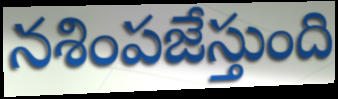
నశింపజేస్తుంది